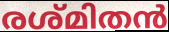
രശ്മിതൻ